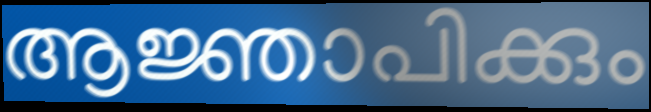
ആജ്ഞാപിക്കും